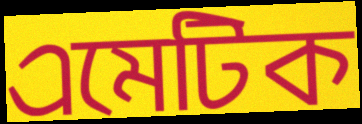
এমেটিক